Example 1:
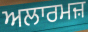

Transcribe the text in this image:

ਅਲਾਰਮਜ਼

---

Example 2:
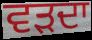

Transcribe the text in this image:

ਵੜਦਾ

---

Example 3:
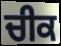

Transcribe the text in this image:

ਚੀਕ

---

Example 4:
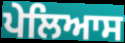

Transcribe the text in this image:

ਪੇਲਿਆਸ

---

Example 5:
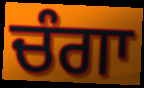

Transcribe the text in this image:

ਚੰਗਾ